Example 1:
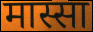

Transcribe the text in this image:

मास्सा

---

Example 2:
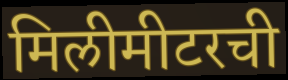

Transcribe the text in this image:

मिलीमीटरची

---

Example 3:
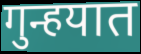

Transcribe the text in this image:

गुन्हयात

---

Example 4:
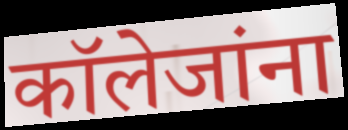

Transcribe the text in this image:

कॉलेजांना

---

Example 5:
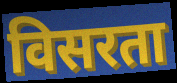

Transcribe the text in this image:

विसरता